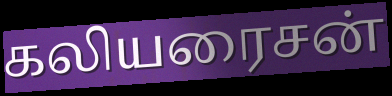
கலியரைசன்